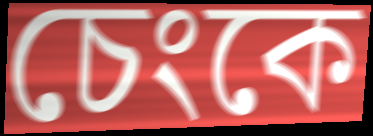
চেংকে